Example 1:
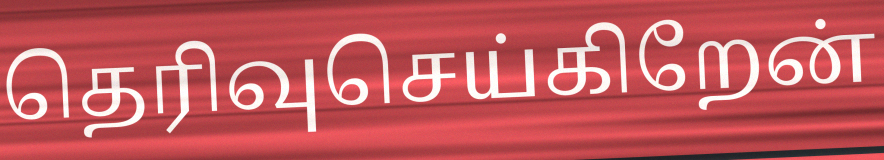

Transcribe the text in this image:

தெரிவுசெய்கிறேன்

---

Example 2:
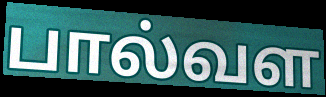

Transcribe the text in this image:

பால்வள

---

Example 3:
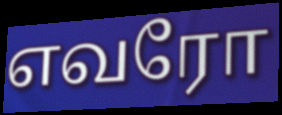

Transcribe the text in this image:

எவரோ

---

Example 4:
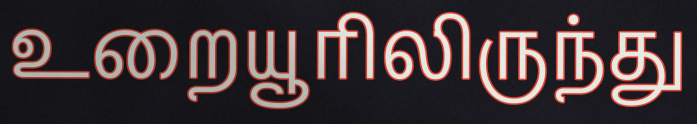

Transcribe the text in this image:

உறையூரிலிருந்து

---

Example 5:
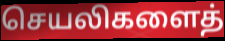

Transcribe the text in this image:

செயலிகளைத்